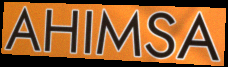
AHIMSA